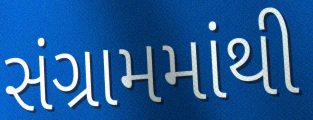
સંગ્રામમાંથી